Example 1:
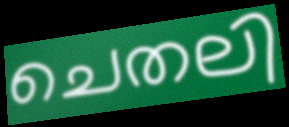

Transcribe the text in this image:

ചെതലി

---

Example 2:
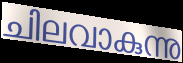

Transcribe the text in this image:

ചിലവാകുന്നു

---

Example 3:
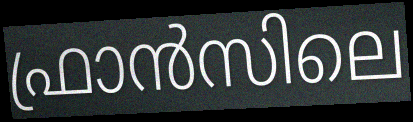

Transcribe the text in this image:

ഫ്രാൻസിലെ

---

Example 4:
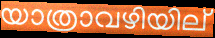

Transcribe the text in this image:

യാത്രാവഴിയില്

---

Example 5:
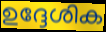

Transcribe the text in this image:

ഉദ്ദേശിക